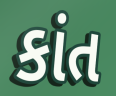
કાંત